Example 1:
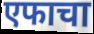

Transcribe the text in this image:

एफाचा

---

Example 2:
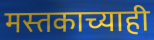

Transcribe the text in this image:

मस्तकाच्याही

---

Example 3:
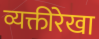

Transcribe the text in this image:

व्यक्तीरेखा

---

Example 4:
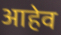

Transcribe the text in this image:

आहेव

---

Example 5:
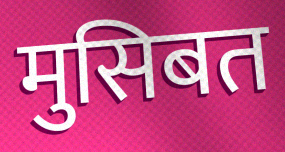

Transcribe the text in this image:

मुसिबत